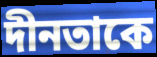
দীনতাকে